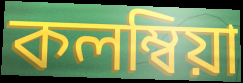
কলম্বিয়া